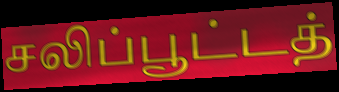
சலிப்பூட்டத்